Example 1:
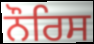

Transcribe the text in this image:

ਨੌਰਿਸ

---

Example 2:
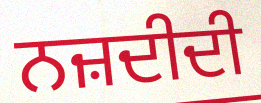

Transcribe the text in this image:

ਨਜ਼ਦੀਦੀ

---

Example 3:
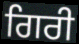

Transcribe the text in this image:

ਗਿਰੀ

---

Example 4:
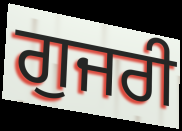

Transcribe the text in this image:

ਗੁਜਰੀ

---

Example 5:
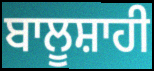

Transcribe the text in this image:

ਬਾਲੂਸ਼ਾਹੀ